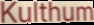
Kulthum